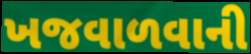
ખજવાળવાની